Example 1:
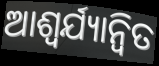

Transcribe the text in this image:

ଆଶ୍ବର୍ଯ୍ୟାନ୍ବିତ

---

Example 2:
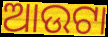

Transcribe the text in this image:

ଆଉଟା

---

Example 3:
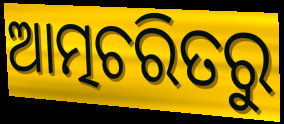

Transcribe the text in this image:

ଆତ୍ମଚରିତରୁ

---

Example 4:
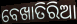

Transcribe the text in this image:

ବେଖାତିରିଆ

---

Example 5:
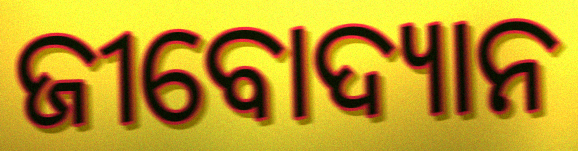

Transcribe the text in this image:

ଜୀବୋଦ୍ୟାନ